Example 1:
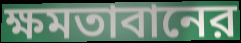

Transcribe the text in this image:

ক্ষমতাবানের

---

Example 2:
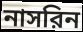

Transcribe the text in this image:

নাসরিন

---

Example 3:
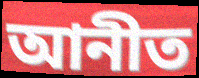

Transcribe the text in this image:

আনীত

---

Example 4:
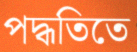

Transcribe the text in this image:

পদ্ধতিতে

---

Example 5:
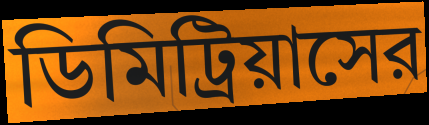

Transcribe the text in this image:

ডিমিট্রিয়াসের